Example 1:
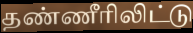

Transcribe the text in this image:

தண்ணீரிலிட்டு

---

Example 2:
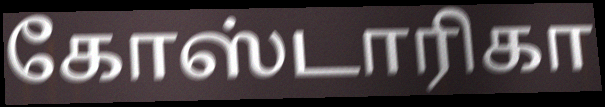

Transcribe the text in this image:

கோஸ்டாரிகா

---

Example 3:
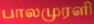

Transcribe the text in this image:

பாலமுரளி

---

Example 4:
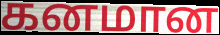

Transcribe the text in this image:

கனமான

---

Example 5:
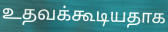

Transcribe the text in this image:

உதவக்கூடியதாக